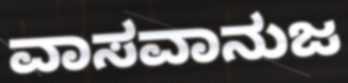
ವಾಸವಾನುಜ